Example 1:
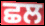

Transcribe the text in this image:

ਛਲ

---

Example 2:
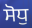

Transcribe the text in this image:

ਸੋਧੁ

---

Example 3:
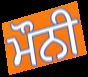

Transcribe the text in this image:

ਮੌਨੀ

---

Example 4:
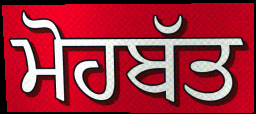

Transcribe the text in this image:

ਮੋਹਬੱਤ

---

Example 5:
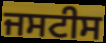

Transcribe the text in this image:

ਜਸਟੀਸ